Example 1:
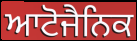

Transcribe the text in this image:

ਆਟੋਜੈਨਿਕ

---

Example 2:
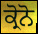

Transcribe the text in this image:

ਕ੍ਰੋਨੋ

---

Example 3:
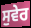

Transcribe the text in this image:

ਸੁਵੇਰ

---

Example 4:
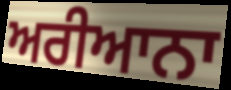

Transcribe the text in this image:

ਅਰੀਆਨਾ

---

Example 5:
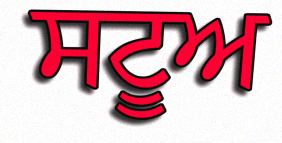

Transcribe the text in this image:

ਸਟੂਅ